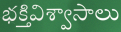
భక్తివిశ్వాసాలు